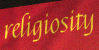
religiosity